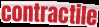
contractile